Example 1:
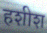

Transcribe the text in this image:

हशीश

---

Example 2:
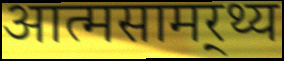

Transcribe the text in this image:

आत्मसामर्थ्य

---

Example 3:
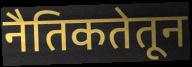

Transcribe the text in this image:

नैतिकतेतून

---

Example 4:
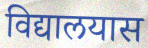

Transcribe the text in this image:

विद्यालयास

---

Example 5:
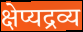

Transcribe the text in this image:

क्षेप्यद्रव्य